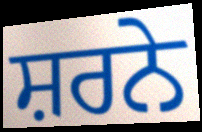
ਸ਼ਰਨੇ